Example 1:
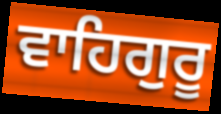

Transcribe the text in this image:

ਵਾਹਿਗੁਰੂ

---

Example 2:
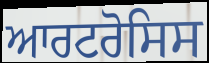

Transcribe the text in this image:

ਆਰਟਰੋਸਿਸ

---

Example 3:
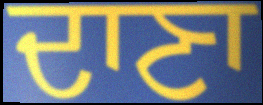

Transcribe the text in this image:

ਦਾਣਾ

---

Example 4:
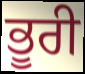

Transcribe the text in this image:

ਭੂਰੀ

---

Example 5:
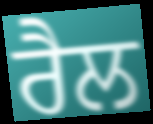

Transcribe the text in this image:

ਰੈਲ